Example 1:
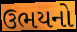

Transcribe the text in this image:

ઉભયનો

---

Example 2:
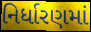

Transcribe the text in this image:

નિર્ધારણમાં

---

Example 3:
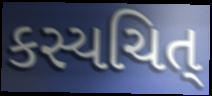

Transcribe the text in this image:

કસ્યચિત્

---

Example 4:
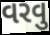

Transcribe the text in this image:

વરવુ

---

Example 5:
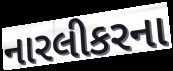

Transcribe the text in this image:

નારલીકરના